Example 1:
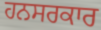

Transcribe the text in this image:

ਹਨਸਰਕਾਰ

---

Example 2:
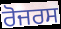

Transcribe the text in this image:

ਰੋਜਰਸ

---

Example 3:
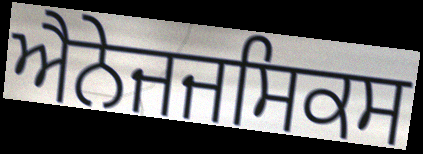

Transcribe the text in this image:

ਐਨੇਜਜਸਿਕਸ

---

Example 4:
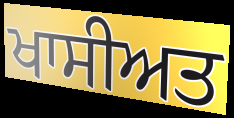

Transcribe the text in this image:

ਖਾਸੀਅਤ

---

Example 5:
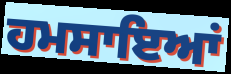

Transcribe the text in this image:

ਹਮਸਾਇਆਂ